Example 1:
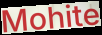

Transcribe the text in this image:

Mohite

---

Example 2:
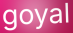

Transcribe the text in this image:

goyal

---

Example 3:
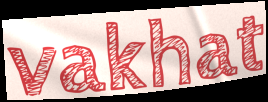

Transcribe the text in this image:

vakhat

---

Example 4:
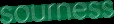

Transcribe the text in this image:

sourness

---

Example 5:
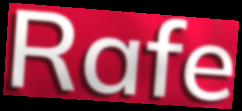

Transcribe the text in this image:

Rafe